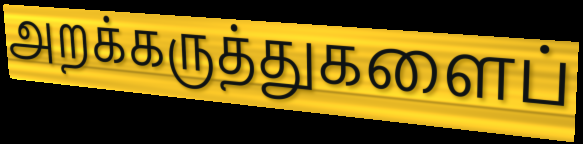
அறக்கருத்துகளைப்